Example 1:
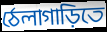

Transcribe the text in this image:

ঠেলাগাড়িতে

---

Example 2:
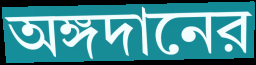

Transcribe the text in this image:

অঙ্গদানের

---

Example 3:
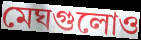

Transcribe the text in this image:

মেঘগুলোও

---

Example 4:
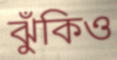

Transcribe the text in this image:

ঝুঁকিও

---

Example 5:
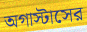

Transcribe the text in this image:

অগাস্টাসের